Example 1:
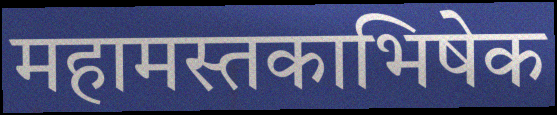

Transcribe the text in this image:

महामस्तकाभिषेक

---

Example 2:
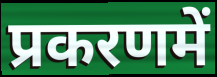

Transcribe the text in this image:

प्रकरणमें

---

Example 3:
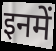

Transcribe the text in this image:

इनमें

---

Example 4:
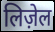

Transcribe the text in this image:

लिज़ेल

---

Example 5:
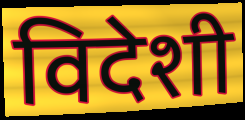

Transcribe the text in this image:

विदेशी